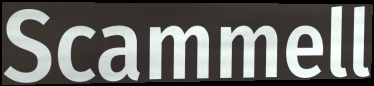
Scammell